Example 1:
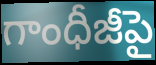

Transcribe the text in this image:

గాంధీజీపై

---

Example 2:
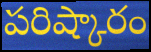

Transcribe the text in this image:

పరిష్కారం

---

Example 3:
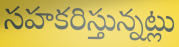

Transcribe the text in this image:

సహకరిస్తున్నట్లు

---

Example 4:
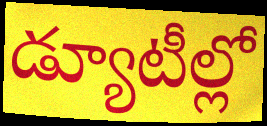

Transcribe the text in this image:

డ్యూటీల్లో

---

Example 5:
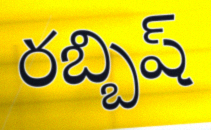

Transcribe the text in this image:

రబ్బిష్